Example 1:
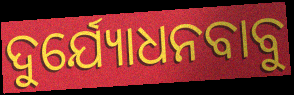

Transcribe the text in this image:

ଦୁର୍ଯ୍ୟୋଧନବାବୁ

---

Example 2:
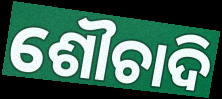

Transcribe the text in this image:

ଶୌଚାଦି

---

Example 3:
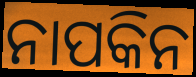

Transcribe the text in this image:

ନାପକିନ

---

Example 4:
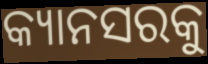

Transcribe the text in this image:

କ୍ୟାନସରକୁ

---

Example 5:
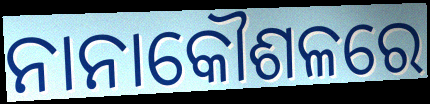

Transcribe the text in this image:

ନାନାକୌଶଳରେ